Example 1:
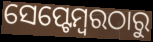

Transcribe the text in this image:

ସେପ୍ଟେମ୍ବରଠାରୁ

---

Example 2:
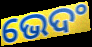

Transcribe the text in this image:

ଭେଦଂ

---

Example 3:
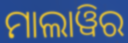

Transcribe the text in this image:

ମାଲାୱିର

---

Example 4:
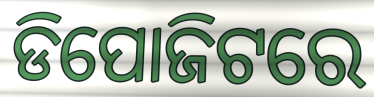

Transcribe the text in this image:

ଡିପୋଜିଟରେ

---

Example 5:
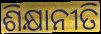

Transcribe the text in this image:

ଶିକ୍ଷାନୀତି